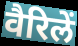
वैरिलें